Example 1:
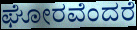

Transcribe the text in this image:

ಘೋರವೆಂದರೆ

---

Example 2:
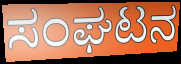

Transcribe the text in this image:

ಸಂಘಟನ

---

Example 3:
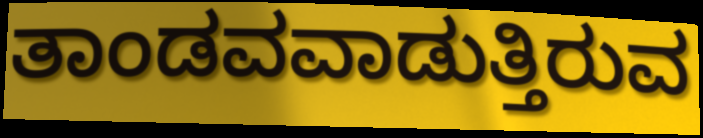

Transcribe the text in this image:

ತಾಂಡವವಾಡುತ್ತಿರುವ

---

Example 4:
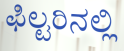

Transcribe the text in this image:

ಫಿಲ್ಟರಿನಲ್ಲಿ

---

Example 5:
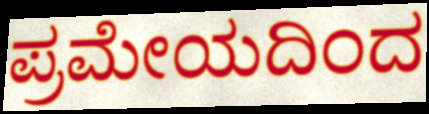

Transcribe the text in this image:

ಪ್ರಮೇಯದಿಂದ